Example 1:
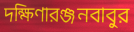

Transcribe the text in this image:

দক্ষিণারঞ্জনবাবুর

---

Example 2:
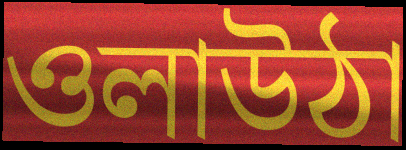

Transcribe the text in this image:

ওলাউঠা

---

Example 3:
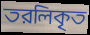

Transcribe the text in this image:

তরলিকৃত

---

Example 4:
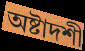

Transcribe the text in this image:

অষ্টাদশী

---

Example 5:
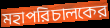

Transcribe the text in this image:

মহাপরিচালকের